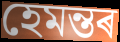
হেমন্তৰ